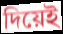
দিয়েই